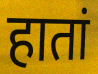
हातां